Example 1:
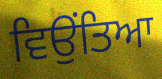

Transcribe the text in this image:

ਵਿਉਂਤਿਆ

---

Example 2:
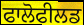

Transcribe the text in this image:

ਫਾਲੋਫੀਲਡ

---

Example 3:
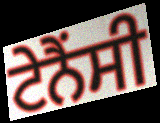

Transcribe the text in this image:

ਟੇਨੈਂਸੀ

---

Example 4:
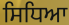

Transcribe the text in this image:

ਸਿਧਿਆ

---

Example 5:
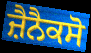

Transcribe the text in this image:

ਜ਼ੈਨੈਕਸੋ